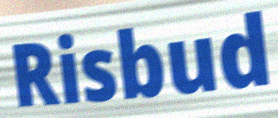
Risbud